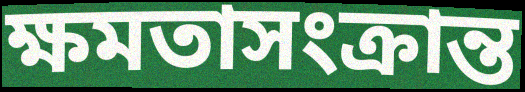
ক্ষমতাসংক্রান্ত